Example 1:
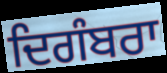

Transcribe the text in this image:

ਦਿਗੰਬਰਾ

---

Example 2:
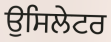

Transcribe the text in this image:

ਉਸਿਲੇਟਰ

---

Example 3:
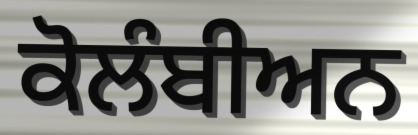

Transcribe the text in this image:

ਕੋਲੰਬੀਅਨ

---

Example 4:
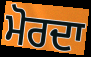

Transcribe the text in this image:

ਮੋਰਦਾ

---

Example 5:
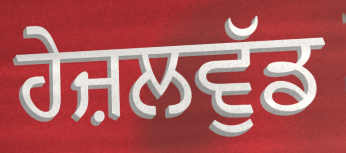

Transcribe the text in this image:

ਹੇਜ਼ਲਵੁੱਡ